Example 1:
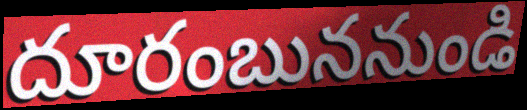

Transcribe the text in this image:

దూరంబుననుండి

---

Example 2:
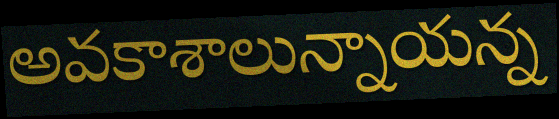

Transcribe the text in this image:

అవకాశాలున్నాయన్న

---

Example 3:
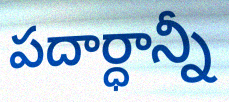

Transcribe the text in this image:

పదార్ధాన్నీ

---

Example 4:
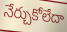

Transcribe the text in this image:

నేర్చుకోలేదా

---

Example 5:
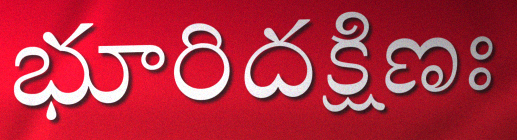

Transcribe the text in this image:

భూరిదక్షిణః